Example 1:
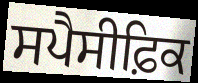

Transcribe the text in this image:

ਸਪੈਸੀਫ਼ਿਕ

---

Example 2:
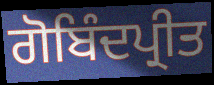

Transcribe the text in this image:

ਗੋਬਿੰਦਪ੍ਰੀਤ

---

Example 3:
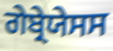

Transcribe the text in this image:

ਗੇਬ੍ਰੇਯੇਸਸ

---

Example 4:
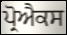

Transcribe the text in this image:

ਪ੍ਰੋਐਕਸ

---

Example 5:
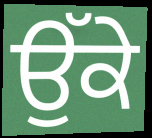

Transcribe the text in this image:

ਉੱਕੇ